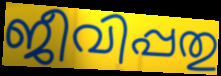
ജീവിപ്പതു